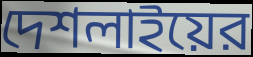
দেশলাইয়ের